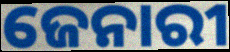
ଜେନାରୀ